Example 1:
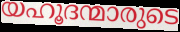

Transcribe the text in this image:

യഹൂദന്മാരുടെ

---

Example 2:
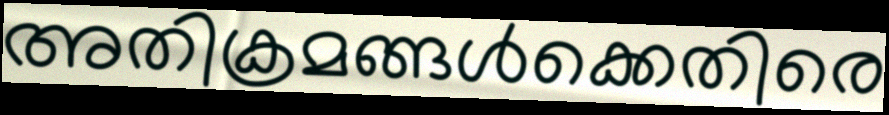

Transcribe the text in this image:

അതിക്രമങ്ങൾക്കെതിരെ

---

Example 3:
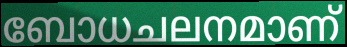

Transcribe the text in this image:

ബോധചലനമാണ്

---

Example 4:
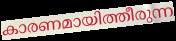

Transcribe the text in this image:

കാരണമായിത്തീരുന്ന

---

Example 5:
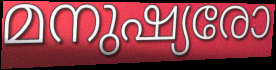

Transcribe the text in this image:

മനുഷ്യരോ